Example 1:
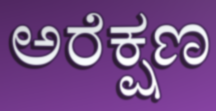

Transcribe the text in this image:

ಅರೆಕ್ಷಣ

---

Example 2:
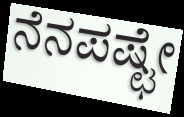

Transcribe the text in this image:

ನೆನಪಷ್ಟೇ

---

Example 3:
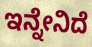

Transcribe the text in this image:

ಇನ್ನೇನಿದೆ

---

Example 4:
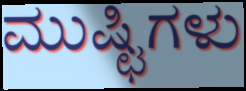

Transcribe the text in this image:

ಮುಷ್ಟಿಗಳು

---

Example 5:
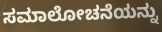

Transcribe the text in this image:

ಸಮಾಲೋಚನೆಯನ್ನು